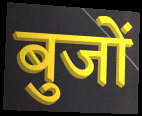
बुजों